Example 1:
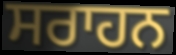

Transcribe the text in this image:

ਸਰਾਹਨ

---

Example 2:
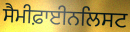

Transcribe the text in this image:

ਸੈਮੀਫ਼ਾਈਨਲਿਸਟ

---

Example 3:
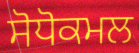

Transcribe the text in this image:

ਸੋਧੋਕਮਲ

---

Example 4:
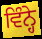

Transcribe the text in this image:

ਵਿੰਨ੍ਹੇ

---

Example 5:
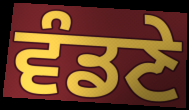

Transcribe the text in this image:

ਵੰਡਣੇ